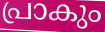
പ്രാകും